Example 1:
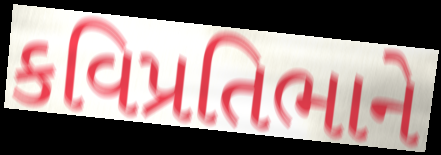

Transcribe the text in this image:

કવિપ્રતિભાને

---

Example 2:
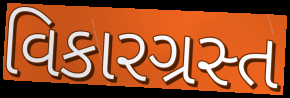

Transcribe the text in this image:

વિકારગ્રસ્ત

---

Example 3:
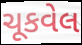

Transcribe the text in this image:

ચૂકવેલ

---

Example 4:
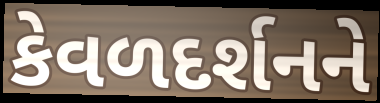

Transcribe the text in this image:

કેવળદર્શનને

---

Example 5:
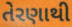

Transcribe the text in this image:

તેરણાથી